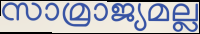
സാമ്രാജ്യമല്ല